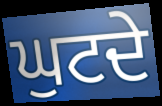
ਘੁਟਦੇ